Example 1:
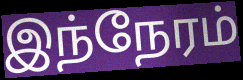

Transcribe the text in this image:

இந்நேரம்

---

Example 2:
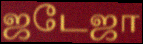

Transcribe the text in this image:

ஜடேஜா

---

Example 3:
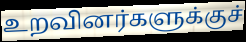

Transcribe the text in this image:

உறவினர்களுக்குச்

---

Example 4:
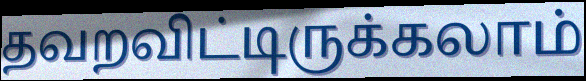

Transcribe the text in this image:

தவறவிட்டிருக்கலாம்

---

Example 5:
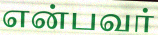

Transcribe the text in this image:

என்பவர்